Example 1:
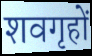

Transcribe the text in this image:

शवगृहों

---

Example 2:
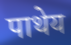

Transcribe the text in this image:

पाथेय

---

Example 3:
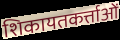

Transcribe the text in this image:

शिकायतकर्त्ताओं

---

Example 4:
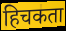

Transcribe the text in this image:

हिचकता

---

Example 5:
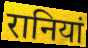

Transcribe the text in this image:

रानियां